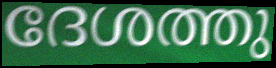
ദേശത്തു